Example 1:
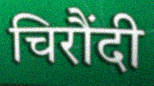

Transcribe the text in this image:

चिरौंदी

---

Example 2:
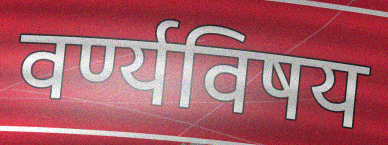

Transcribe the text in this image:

वर्ण्यविषय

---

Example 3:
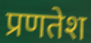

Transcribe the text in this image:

प्रणतेश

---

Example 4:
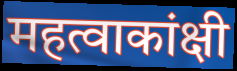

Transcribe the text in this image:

महत्वाकांक्षी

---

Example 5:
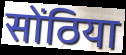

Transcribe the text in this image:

सोंठिया